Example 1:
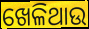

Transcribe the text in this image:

ଖେଳିଥାଉ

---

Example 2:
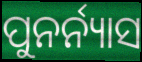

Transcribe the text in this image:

ପୁନର୍ନ୍ୟାସ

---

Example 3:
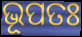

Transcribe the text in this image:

ଭୂପତଃ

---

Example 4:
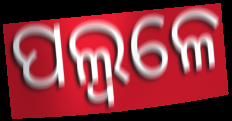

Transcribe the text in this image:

ପଲ୍ୱଳେ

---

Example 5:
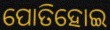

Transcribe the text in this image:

ପୋତିହୋଇ